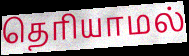
தெரியாமல்